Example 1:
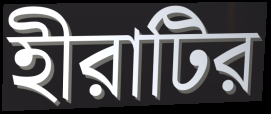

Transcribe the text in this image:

হীরাটির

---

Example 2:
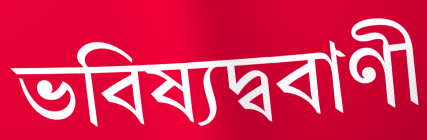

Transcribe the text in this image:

ভবিষ্যদ্ববাণী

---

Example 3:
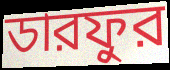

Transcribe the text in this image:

ডারফুর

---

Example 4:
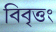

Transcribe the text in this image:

বিবৃত্তং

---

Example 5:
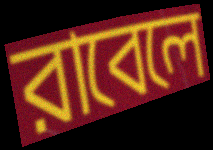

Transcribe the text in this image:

রাবেলে